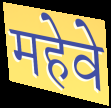
महेवे